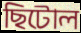
ছিটোল